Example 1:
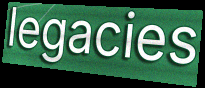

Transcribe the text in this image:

legacies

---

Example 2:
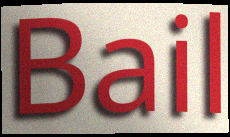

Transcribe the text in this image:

Bail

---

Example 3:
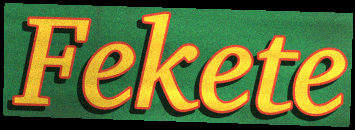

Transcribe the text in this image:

Fekete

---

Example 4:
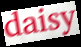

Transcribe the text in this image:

daisy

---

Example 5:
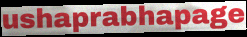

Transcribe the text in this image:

ushaprabhapage